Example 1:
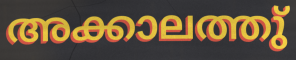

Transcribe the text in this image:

അക്കാലത്തു്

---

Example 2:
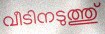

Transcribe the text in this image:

വീടിനടുത്തു്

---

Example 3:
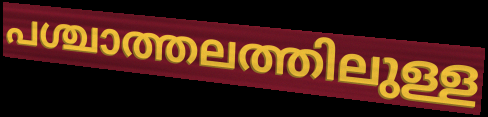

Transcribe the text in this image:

പശ്ചാത്തലത്തിലുള്ള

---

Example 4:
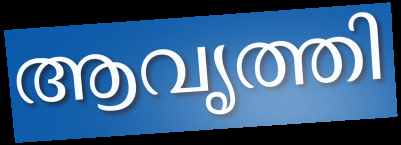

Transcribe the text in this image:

ആവൃത്തി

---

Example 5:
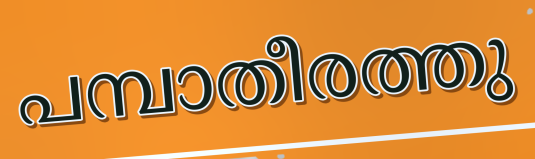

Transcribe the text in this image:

പമ്പാതീരത്തു